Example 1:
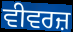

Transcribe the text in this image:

ਵੀਵਰਜ਼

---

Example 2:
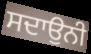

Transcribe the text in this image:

ਸਦਾਉਨੀ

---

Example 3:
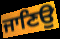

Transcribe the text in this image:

ਜਾਣਿਉ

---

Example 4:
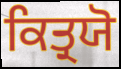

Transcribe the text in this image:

ਕਿਤ੍ਰਯੋ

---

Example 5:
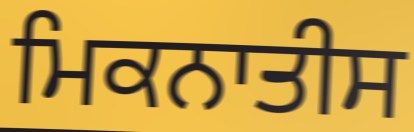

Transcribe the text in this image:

ਮਿਕਨਾਤੀਸ